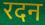
रदन